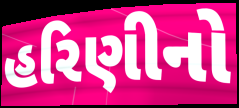
હરિણીનો